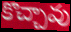
కొచ్చావు